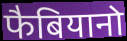
फैबियानो